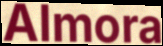
Almora